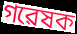
গৱেষক